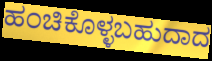
ಹಂಚಿಕೊಳ್ಳಬಹುದಾದ